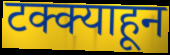
टक्क्याहून